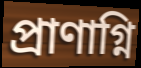
প্রাণাগ্নি